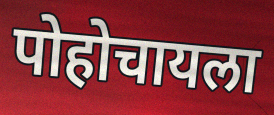
पोहोचायला